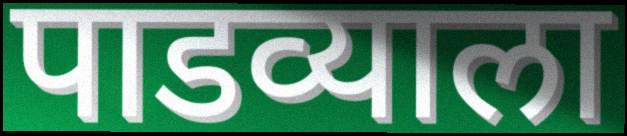
पाडव्याला